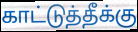
காட்டுத்தீக்கு